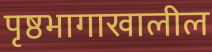
पृष्ठभागाखालील